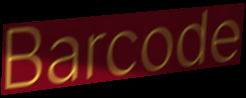
Barcode